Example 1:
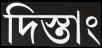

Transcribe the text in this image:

দিস্তাং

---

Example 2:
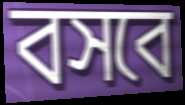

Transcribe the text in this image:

বসবে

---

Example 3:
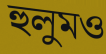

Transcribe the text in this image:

হুলুমও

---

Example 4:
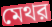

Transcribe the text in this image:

মেথর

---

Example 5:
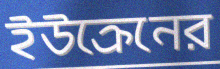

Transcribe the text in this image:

ইউক্রেনের